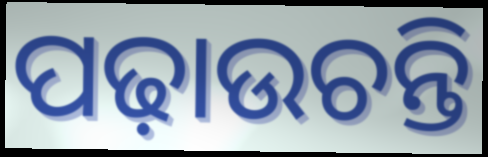
ପଢ଼ାଉଚନ୍ତି